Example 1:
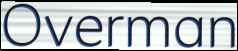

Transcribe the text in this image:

Overman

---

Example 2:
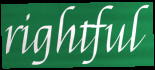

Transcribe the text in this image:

rightful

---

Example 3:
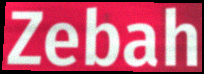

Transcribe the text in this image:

Zebah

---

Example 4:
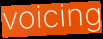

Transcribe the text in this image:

voicing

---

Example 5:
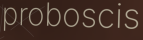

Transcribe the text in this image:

proboscis